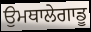
ਉਮਥਾਲੇਗਾਡੂ